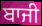
ਬਾਜੀ